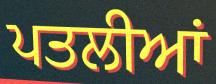
ਪਤਲੀਆਂ